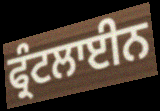
ਫ੍ਰੰਟਲਾਈਨ